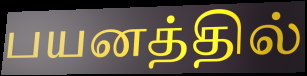
பயனத்தில்